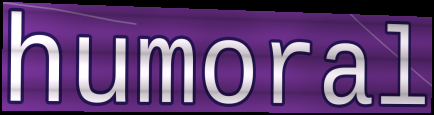
humoral